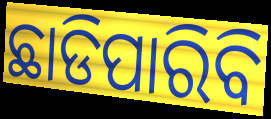
ଛାଡିପାରିବି